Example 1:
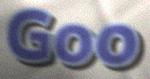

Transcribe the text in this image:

Goo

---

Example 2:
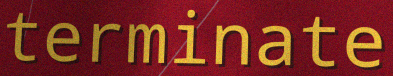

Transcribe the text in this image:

terminate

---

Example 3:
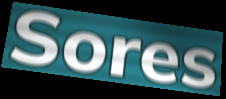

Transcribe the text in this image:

Sores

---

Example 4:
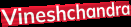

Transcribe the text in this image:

Vineshchandra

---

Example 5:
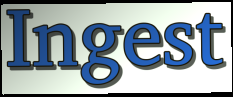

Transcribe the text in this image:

Ingest